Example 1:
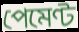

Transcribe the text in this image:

পেমেণ্ট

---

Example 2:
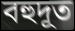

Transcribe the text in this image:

বহুদূত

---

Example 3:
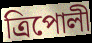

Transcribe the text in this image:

ত্রিপোলী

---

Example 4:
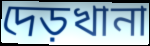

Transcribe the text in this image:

দেড়খানা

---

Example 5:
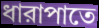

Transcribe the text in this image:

ধারাপাতে